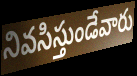
నివసిస్తుండేవారు